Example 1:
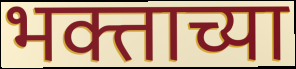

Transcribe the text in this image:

भक्ताच्या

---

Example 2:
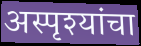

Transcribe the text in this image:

अस्पृश्यांचा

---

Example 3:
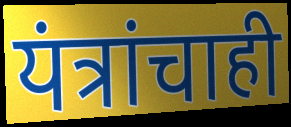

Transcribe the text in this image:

यंत्रांचाही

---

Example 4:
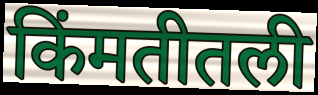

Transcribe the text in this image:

किंमतीतली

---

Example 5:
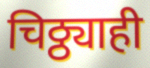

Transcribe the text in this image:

चिठ्ठ्याही